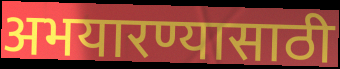
अभयारण्यासाठी